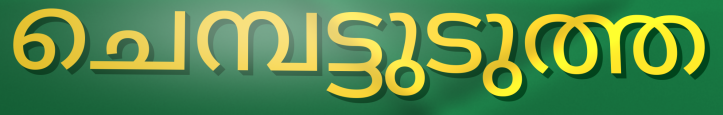
ചെമ്പട്ടുടുത്ത